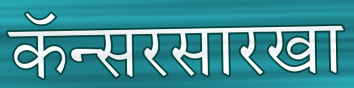
कॅन्सरसारखा